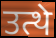
उत्थे